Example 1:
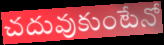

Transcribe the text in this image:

చదువుకుంటేనో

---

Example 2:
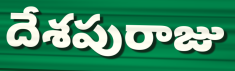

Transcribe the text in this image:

దేశపురాజు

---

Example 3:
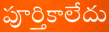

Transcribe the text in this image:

పూర్తికాలేదు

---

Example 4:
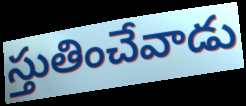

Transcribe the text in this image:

స్తుతించేవాడు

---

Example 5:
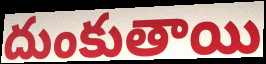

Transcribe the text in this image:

దుంకుతాయి